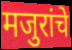
मजुरांचे